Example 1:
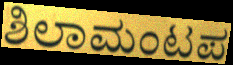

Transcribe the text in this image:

ಶಿಲಾಮಂಟಪ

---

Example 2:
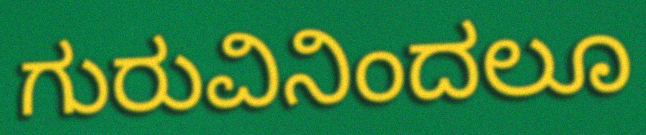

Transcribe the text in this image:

ಗುರುವಿನಿಂದಲೂ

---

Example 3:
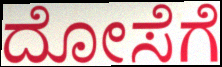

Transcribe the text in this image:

ದೋಸೆಗೆ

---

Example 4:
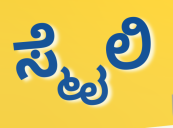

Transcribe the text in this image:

ಸ್ಮೈಲಿ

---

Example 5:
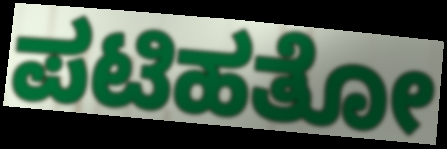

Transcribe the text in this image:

ಪಟಿಹತೋ